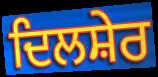
ਦਿਲਸ਼ੇਰ